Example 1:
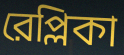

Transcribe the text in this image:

রেপ্লিকা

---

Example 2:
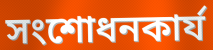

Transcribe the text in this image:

সংশোধনকার্য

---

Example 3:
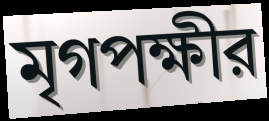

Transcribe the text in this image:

মৃগপক্ষীর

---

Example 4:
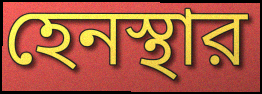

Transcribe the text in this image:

হেনস্থার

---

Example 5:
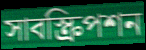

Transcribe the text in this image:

সাবস্ক্রিপশন